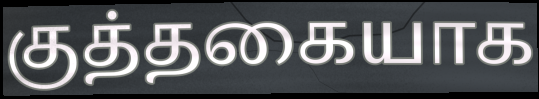
குத்தகையாக